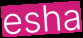
esha